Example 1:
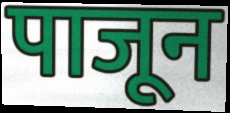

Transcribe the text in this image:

पाजून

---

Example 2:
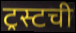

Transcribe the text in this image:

ट्रस्टची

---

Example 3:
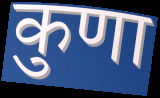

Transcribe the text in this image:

कुणा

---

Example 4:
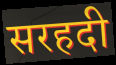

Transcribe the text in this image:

सरहदी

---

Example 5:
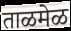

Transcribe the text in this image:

ताळमेळ